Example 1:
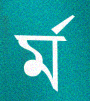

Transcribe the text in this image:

র্ম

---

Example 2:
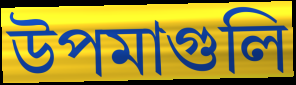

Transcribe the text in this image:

উপমাগুলি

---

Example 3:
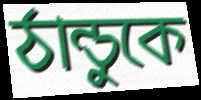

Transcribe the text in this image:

ঠান্ডুকে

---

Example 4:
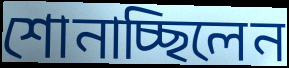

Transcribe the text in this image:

শোনাচ্ছিলেন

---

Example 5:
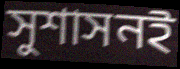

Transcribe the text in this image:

সুশাসনই